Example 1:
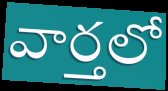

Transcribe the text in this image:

వార్తలో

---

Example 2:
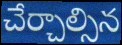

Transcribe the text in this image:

చేర్చాల్సిన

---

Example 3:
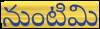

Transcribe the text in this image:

నుంటిమి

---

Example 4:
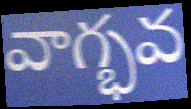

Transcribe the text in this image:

వాగ్భవ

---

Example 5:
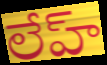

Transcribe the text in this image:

లేహ్